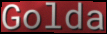
Golda